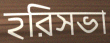
হরিসভা